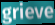
grieve